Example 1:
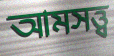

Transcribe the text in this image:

আমসত্ত্ব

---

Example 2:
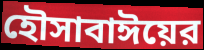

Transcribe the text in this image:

হৌসাবাঈয়ের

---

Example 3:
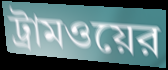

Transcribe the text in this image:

ট্রামওয়ের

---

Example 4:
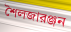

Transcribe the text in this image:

শৈলজারঞ্জন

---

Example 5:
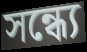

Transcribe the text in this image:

সন্ধ্যে